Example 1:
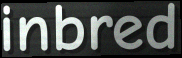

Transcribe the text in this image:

inbred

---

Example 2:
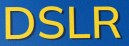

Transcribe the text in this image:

DSLR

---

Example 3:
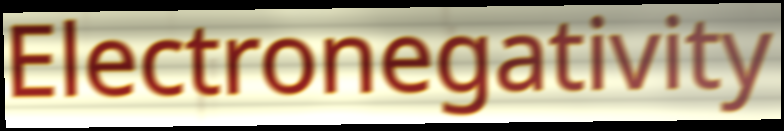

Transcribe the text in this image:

Electronegativity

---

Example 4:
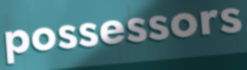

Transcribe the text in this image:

possessors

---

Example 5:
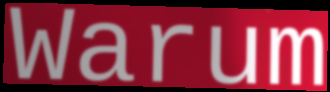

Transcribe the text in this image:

Warum